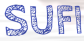
SUFI